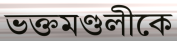
ভক্তমণ্ডলীকে